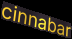
cinnabar